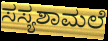
ಸಸ್ಯಶಾಮಲೆ